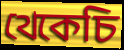
থেকেচি